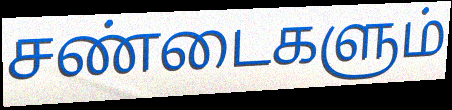
சண்டைகளும்